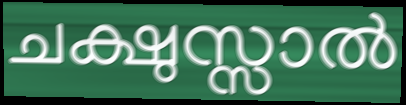
ചക്ഷുസ്സാൽ